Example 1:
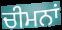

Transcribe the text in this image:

ਚੀਮਨਾਂ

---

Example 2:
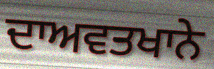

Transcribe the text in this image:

ਦਾਅਵਤਖਾਨੇ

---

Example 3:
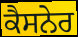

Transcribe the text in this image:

ਕੈਸਨੇਰ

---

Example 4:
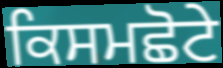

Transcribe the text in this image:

ਕਿਸਮਛੋਟੇ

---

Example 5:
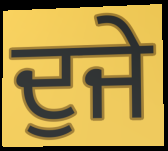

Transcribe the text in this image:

ਦੁਜੇ